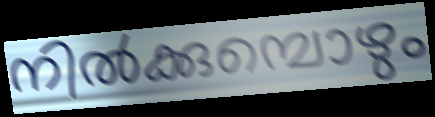
നിൽക്കുമ്പൊഴും